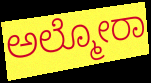
ಅಲ್ಮೋರಾ